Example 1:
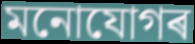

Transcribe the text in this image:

মনোযোগৰ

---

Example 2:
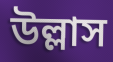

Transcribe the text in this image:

উল্লাস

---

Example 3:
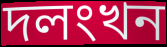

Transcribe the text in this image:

দলংখন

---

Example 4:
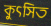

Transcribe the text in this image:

কুৎসিত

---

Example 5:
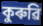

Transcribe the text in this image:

কুৰুৱি